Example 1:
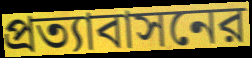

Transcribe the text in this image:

প্রত্যাবাসনের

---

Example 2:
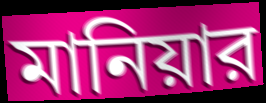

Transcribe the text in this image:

মানিয়ার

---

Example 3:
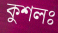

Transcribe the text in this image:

কুশলঃ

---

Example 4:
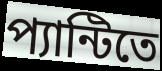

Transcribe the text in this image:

প্যান্টিতে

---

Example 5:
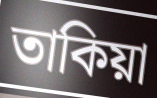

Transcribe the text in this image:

তাকিয়া